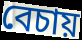
বেচায়